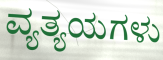
ವ್ಯತ್ಯಯಗಳು